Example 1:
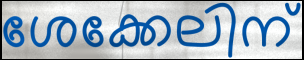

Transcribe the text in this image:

ശേക്കേലിന്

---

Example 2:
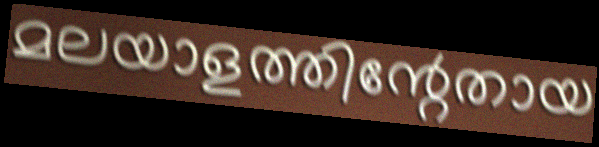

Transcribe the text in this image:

മലയാളത്തിന്റേതായ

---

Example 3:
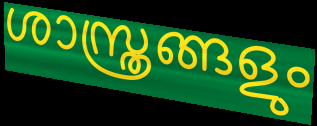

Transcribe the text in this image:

ശാസ്ത്രങ്ങളും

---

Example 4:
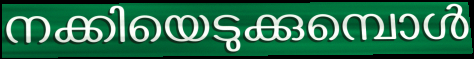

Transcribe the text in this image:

നക്കിയെടുക്കുമ്പൊൾ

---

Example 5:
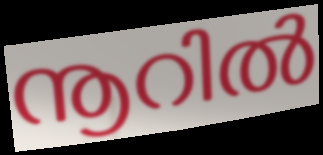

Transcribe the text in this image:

നൂറിൽ